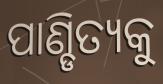
ପାଣ୍ଡିତ୍ୟକୁ